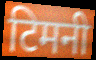
टिमनी